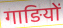
गाङियों